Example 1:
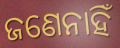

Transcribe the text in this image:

ଜଣେନାହିଁ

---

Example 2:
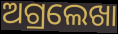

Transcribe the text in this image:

ଅଗ୍ରଲେଖା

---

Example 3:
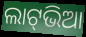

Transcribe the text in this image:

ଲାଟ୍‍ଭିଆ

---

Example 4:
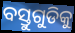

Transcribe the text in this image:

ବସ୍ତୁଗୁଡିକୁ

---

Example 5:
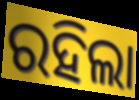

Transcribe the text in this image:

ରହିଲା